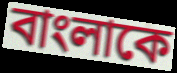
বাংলাকে